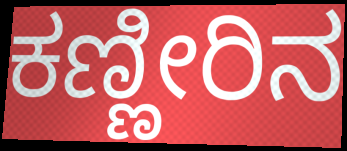
ಕಣ್ಣೀರಿನ